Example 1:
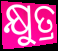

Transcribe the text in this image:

କ୍ଷୁତ୍ର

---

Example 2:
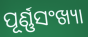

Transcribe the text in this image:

ପୂର୍ଣ୍ଣସଂଖ୍ୟା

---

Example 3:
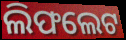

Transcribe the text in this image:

ଲିଫଲେଟ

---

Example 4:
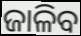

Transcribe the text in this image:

ଜାଳିବ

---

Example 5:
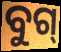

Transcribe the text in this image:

ବୁଗ୍